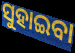
ସୁହାଇବା